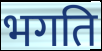
भगति